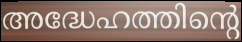
അദ്ധേഹത്തിന്റെ